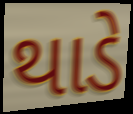
થાડે